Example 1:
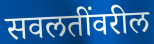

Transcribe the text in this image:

सवलतींवरील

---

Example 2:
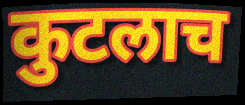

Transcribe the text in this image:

कुटलाच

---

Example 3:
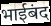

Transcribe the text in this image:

भाईबंद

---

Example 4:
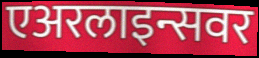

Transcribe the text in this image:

एअरलाइन्सवर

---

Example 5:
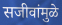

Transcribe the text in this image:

सजीवांमुळे